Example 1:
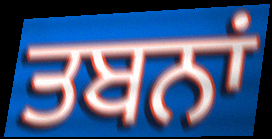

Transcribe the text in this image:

ਤਬਨਾਂ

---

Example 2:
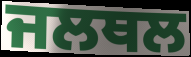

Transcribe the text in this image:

ਜਲਥਲ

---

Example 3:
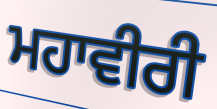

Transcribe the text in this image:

ਮਹਾਵੀਰੀ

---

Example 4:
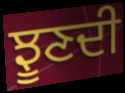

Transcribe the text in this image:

ਝੂਣਦੀ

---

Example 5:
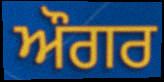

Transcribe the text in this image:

ਔਗਰ